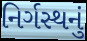
નિર્ગસ્થનું